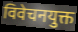
विवेचनयुक्त